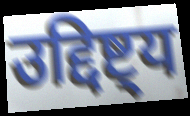
उद्दिष्ट्य